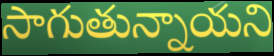
సాగుతున్నాయని